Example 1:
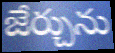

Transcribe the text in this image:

జేర్చును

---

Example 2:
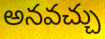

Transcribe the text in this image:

అనవచ్చు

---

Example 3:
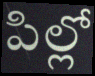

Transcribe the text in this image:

పిల్లో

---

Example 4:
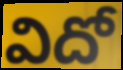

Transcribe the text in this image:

విదో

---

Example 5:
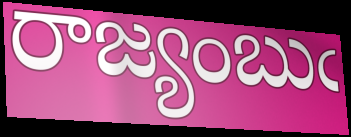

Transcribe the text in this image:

రాజ్యంబుఁ